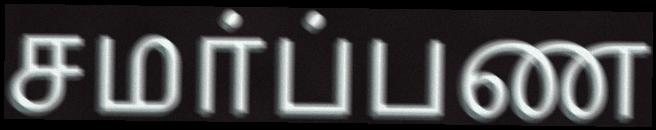
சமர்ப்பண